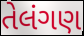
તેલંગણ